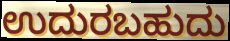
ಉದುರಬಹುದು